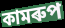
কামৰুপ